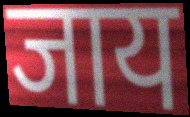
जाय